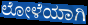
ಲೋಳೆಯಾಗಿ